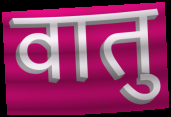
वातु